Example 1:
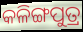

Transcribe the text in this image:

କଳିଙ୍ଗପୁତ୍ର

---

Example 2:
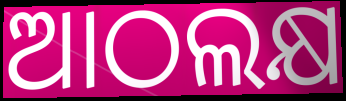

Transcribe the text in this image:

ଆଠଲକ୍ଷ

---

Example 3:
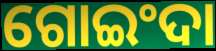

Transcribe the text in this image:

ଗୋଇଂଦା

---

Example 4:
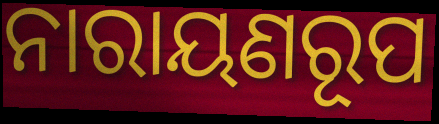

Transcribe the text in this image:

ନାରାୟଣରୂପ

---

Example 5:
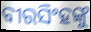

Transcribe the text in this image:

ବୀରସିଂହଙ୍କୁ